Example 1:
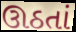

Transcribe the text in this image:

ઊઠતાં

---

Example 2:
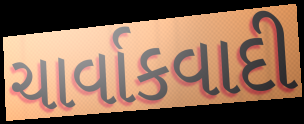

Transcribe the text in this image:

ચાર્વાકવાદી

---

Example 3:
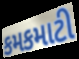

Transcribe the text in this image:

કમકમાટી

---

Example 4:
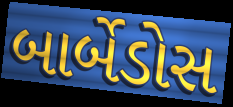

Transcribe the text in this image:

બાર્બેડોસ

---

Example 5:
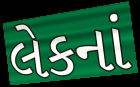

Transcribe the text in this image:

લેકનાં